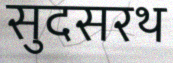
सुदसरथ